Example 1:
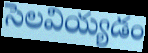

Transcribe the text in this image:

సెలవియ్యడం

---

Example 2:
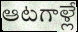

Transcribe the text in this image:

ఆటగాళ్లే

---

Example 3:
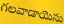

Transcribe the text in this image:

గలవాడాయెను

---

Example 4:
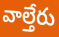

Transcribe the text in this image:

వాల్తేరు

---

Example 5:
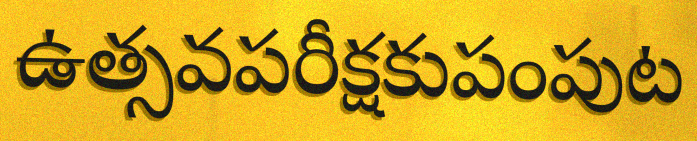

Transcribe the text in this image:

ఉత్సవపరీక్షకుపంపుట